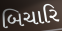
બિચારિ